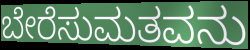
ಬೇರೆಸುಮತವನು